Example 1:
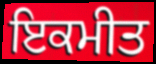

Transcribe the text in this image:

ਇਕਮੀਤ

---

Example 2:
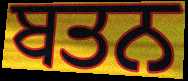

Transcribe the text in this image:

ਬਤਨ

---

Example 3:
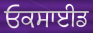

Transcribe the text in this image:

ਓਕਸਾਈਡ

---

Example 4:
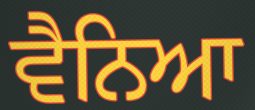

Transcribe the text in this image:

ਵੈਨਿਆ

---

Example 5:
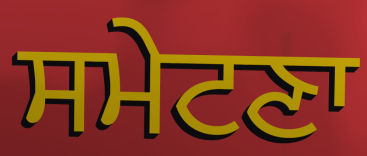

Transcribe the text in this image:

ਸਮੇਟਣਾ